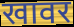
खावर